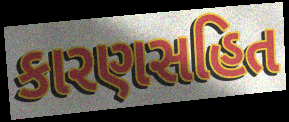
કારણસહિત